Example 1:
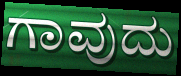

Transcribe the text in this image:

ಗಾವುದು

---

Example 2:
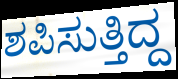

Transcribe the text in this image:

ಶಪಿಸುತ್ತಿದ್ದ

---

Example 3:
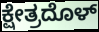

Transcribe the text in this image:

ಕ್ಷೇತ್ರದೊಳ್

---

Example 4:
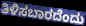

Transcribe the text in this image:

ತಿಳಿಸಬಾರದೆಂದು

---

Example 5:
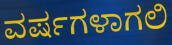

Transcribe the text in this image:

ವರ್ಷಗಳಾಗಲಿ